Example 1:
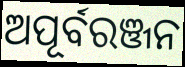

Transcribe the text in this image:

ଅପୂର୍ବରଞ୍ଜନ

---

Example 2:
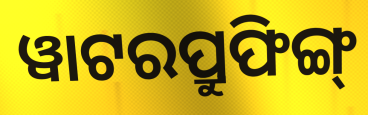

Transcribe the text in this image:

ୱାଟରପ୍ରୁଫିଙ୍ଗ୍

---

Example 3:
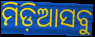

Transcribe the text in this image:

ମିଡ଼ିଆସବୁ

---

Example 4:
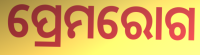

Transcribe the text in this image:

ପ୍ରେମରୋଗ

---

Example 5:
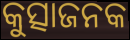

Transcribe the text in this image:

କୁତ୍ସାଜନକ